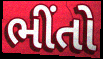
ભીંતો